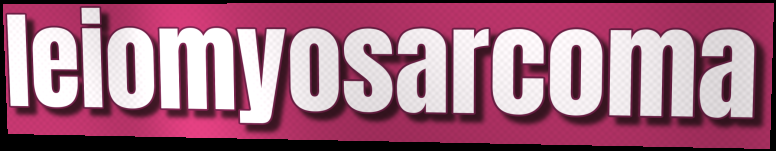
leiomyosarcoma